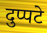
दुप्पटे